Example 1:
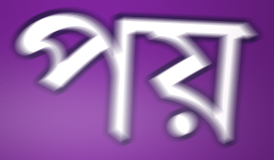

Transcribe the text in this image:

পয়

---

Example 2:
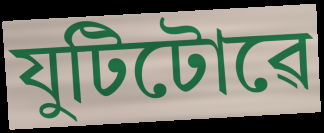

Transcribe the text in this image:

যুটিটোৱে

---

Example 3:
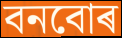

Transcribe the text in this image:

বনবোৰ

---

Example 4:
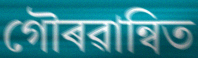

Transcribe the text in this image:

গৌৰৱান্বিত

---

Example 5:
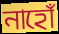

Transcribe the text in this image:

নাহোঁ